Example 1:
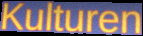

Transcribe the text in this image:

Kulturen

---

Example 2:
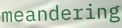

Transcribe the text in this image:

meandering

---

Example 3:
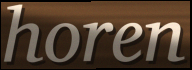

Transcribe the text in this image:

horen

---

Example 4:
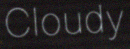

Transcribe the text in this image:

Cloudy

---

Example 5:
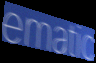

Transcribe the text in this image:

ematic